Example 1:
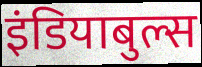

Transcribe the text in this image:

इंडियाबुल्‍स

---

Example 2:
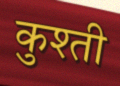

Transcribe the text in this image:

कुश्ती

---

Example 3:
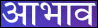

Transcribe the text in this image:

आभाव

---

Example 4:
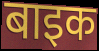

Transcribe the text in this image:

बाइक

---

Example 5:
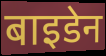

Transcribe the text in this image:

बाइडेन